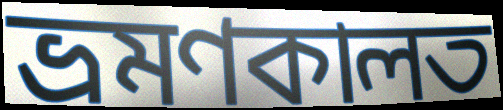
ভ্ৰমণকালত